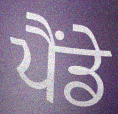
ਪੈਂਡੇ